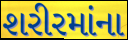
શરીરમાંના